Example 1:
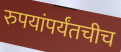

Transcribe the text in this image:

रुपयांपर्यंतचीच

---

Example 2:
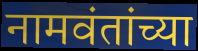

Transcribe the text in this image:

नामवंतांच्या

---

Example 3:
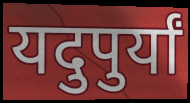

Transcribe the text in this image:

यदुपुर्यां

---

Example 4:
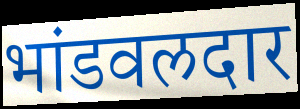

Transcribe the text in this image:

भांडवलदार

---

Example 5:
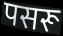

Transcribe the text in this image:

पसरू